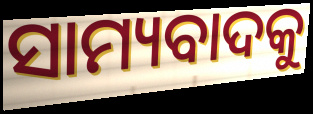
ସାମ୍ୟବାଦକୁ